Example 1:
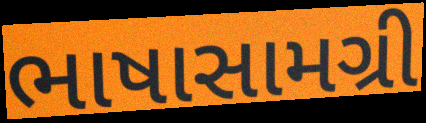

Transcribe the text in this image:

ભાષાસામગ્રી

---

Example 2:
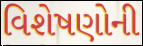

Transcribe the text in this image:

વિશેષણોની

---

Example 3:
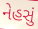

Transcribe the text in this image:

નેહસું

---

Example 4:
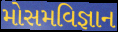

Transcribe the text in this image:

મોસમવિજ્ઞાન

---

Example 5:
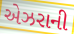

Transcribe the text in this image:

એઝરાની